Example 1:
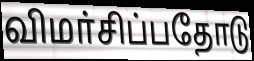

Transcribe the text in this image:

விமர்சிப்பதோடு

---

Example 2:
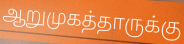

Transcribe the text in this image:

ஆறுமுகத்தாருக்கு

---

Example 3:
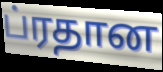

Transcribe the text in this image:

ப்ரதான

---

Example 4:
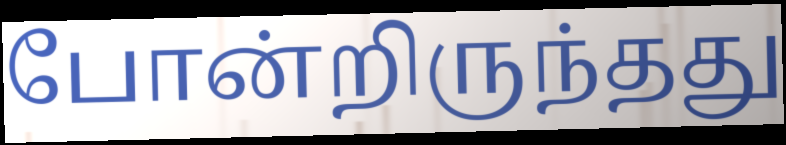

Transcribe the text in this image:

போன்றிருந்தது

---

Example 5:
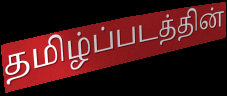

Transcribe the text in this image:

தமிழ்ப்படத்தின்